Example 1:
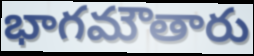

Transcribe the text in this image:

భాగమౌతారు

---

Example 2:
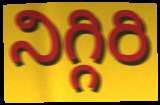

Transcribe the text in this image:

నిగ్గిరి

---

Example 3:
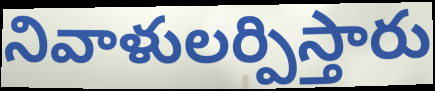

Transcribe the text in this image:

నివాళులర్పిస్తారు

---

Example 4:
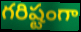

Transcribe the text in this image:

గరిష్టంగా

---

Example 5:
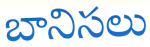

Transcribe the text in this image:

బానిసలు